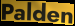
Palden